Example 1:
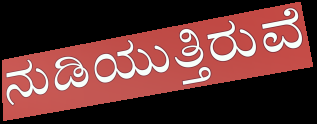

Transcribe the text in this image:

ನುಡಿಯುತ್ತಿರುವೆ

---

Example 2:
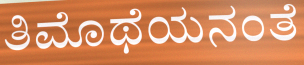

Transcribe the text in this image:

ತಿಮೊಥೆಯನಂತೆ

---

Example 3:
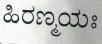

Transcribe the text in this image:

ಹಿರಣ್ಮಯಃ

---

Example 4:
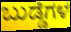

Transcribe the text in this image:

ಬುಡ್ಡೆಗಳ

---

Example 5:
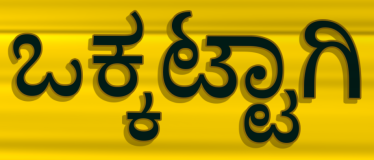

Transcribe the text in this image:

ಒಕ್ಕಟ್ಟಾಗಿ